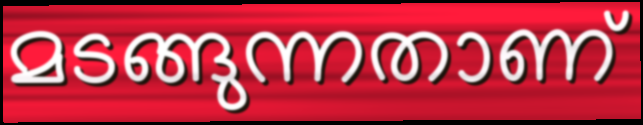
മടങ്ങുന്നതാണ്